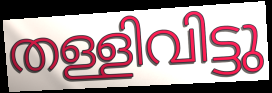
തള്ളിവിട്ടു